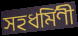
সহধর্মিণী